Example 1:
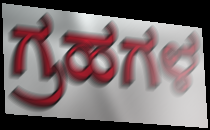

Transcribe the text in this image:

ಗ್ರಹಗಳ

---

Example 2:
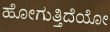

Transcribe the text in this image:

ಹೋಗುತ್ತಿದೆಯೋ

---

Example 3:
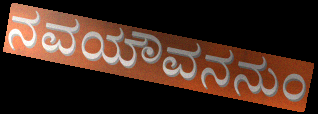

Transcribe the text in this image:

ನವಯೌವನನುಂ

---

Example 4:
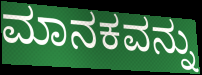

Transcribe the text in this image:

ಮಾನಕವನ್ನು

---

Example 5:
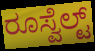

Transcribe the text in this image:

ರೂಸ್ವೆಲ್ಟ್